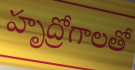
హృద్రోగాలతో